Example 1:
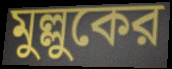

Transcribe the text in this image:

মুল্লুকের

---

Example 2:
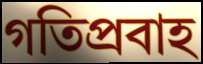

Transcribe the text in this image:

গতিপ্রবাহ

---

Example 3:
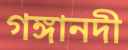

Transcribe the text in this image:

গঙ্গানদী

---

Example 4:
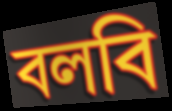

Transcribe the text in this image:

বলবি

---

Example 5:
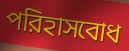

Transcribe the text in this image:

পরিহাসবোধ